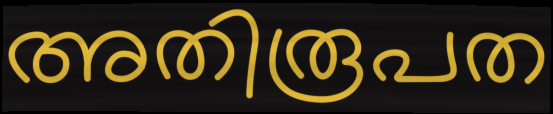
അതിരൂപത